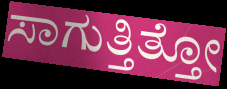
ಸಾಗುತ್ತಿತ್ತೋ